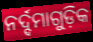
ନର୍ଦ୍ଦମାଗୁଡ଼ିକ